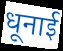
धूनाई